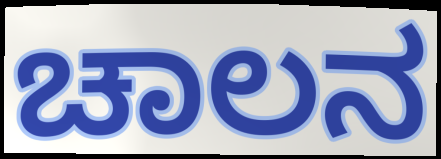
ಚಾಲನ